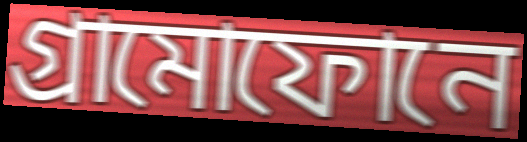
গ্রামোফোনে